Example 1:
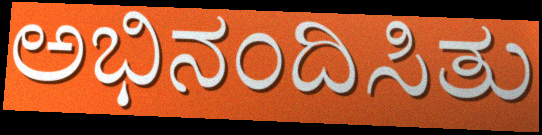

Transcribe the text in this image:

ಅಭಿನಂದಿಸಿತು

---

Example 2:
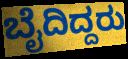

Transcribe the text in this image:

ಬೈದಿದ್ದರು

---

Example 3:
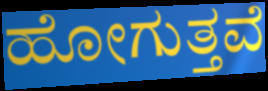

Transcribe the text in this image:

ಹೋಗುತ್ತವೆ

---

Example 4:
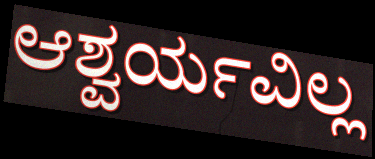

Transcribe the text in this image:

ಆಶ್ವರ್ಯವಿಲ್ಲ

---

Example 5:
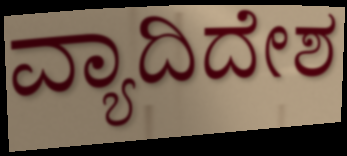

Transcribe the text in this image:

ವ್ಯಾದಿದೇಶ